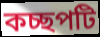
কচ্ছপটি